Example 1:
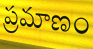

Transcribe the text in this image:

ప్రమాణం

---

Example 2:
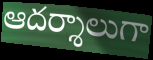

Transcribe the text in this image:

ఆదర్శాలుగా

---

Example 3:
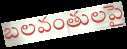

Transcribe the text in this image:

బలవంతులపై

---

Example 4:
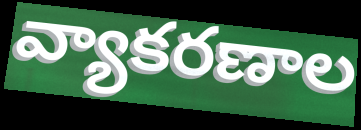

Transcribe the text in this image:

వ్యాకరణాల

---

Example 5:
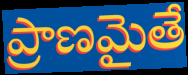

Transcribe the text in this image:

ప్రాణమైతే